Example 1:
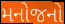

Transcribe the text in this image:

મનોજનો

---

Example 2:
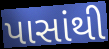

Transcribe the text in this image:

પાસાંથી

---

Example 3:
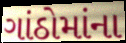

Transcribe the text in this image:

ગાંઠોમાંના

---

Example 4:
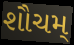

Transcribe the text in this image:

શૌચમ્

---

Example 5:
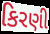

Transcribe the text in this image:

કિરણી